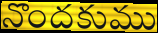
నొందకుము